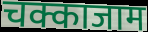
चक्काजाम